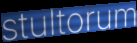
stultorum